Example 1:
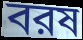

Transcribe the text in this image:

বরষ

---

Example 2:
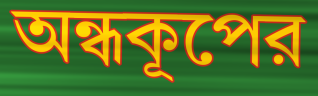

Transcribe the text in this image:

অন্ধকূপের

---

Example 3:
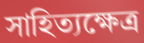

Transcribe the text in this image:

সাহিত্যক্ষেত্র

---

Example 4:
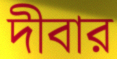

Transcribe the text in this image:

দীবার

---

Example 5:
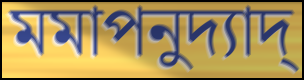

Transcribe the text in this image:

মমাপনুদ্যাদ্